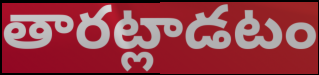
తారట్లాడటం